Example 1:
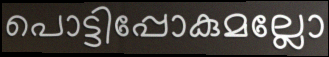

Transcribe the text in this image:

പൊട്ടിപ്പോകുമല്ലോ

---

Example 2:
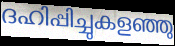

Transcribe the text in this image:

ദഹിപ്പിച്ചുകളഞ്ഞു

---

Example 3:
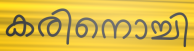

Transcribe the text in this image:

കരിനൊച്ചി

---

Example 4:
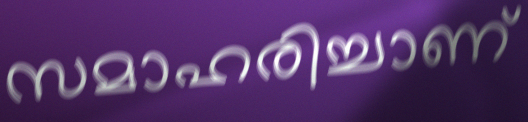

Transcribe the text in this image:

സമാഹരിച്ചാണ്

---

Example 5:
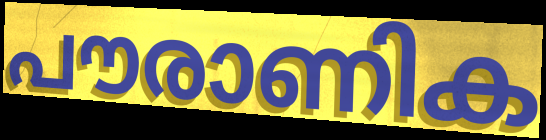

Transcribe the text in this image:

പൗരാണിക